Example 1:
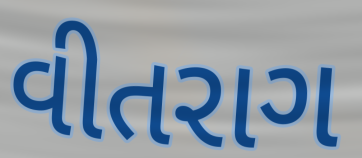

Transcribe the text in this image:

વીતરાગ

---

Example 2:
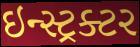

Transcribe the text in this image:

ઇન્સ્ટ્રક્ટર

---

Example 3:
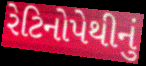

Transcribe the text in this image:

રેટિનોપેથીનું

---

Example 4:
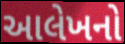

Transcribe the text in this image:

આલેખનો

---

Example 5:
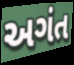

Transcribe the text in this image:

અગંત